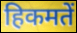
हिकमतें